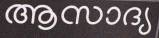
ആസാദ്യ